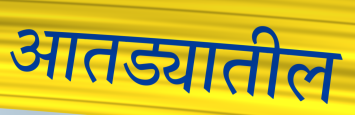
आतड्यातील